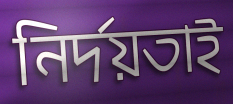
নির্দয়তাই